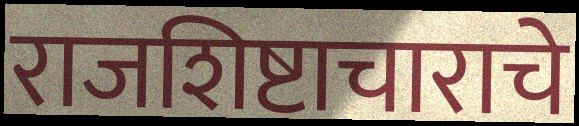
राजशिष्टाचाराचे